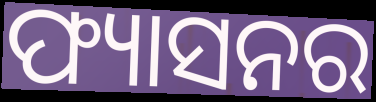
ଫ୍ୟାସନର